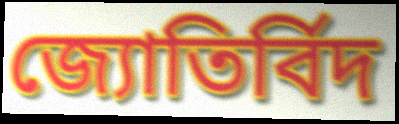
জ্যোতির্বিদ